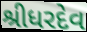
શ્રીધરદેવ